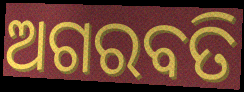
ଅଗରବତି